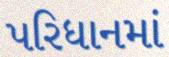
પરિધાનમાં